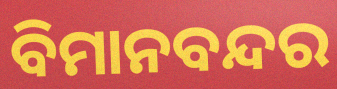
ବିମାନବନ୍ଦର